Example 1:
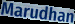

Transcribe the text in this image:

Marudhan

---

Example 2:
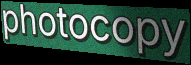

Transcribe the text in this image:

photocopy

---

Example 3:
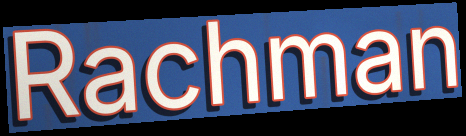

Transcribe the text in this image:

Rachman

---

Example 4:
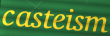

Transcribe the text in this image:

casteism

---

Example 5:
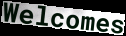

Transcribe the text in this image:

Welcomes